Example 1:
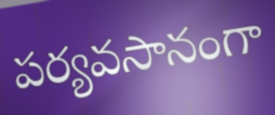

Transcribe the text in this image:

పర్యవసానంగా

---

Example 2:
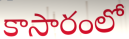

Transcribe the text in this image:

కాసారంలో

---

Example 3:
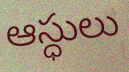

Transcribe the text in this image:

ఆస్ధులు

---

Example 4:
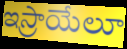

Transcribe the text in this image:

ఇస్రాయేలూ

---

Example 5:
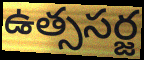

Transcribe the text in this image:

ఉత్ససర్జ